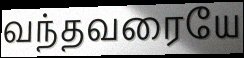
வந்தவரையே